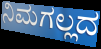
ನಿಮಗಲ್ಲದ